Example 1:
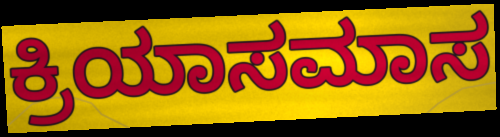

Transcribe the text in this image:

ಕ್ರಿಯಾಸಮಾಸ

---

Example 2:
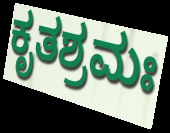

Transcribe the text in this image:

ಕೃತಶ್ರಮಃ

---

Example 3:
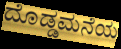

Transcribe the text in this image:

ದೊಡ್ಡಮನೆಯ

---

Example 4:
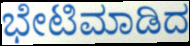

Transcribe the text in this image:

ಭೇಟಿಮಾಡಿದ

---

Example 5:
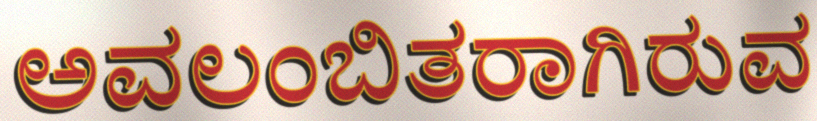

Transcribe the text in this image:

ಅವಲಂಬಿತರಾಗಿರುವ